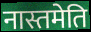
नास्तमेति